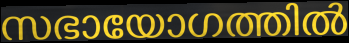
സഭായോഗത്തിൽ